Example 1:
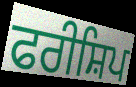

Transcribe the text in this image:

ਫਰੀਸ਼ਿਪ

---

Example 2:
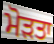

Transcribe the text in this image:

ਮੋੜਤਾ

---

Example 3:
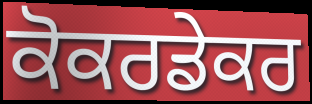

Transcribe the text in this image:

ਕੋਕਰਡੇਕਰ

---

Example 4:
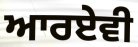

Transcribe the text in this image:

ਆਰਏਵੀ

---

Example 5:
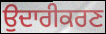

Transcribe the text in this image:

ਉਦਾਰੀਕਰਣ